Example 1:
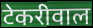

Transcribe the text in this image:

टेकरीवाल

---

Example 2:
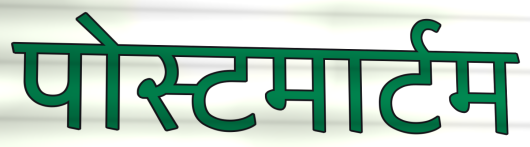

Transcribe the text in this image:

पोस्टमार्टम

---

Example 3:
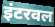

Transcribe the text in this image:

इंटरवल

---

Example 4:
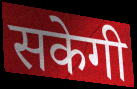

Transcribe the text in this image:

सकेगी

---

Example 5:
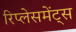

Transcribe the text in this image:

रिप्लेसमेंट्स